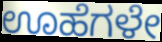
ಊಹೆಗಳೇ